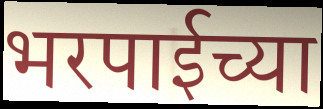
भरपाईच्या